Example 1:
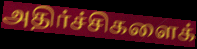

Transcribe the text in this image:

அதிர்ச்சிகளைக்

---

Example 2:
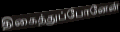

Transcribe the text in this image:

திகைத்துப்போனேன்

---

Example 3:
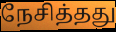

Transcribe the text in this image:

நேசித்தது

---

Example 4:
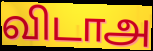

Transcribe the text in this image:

விடாஅ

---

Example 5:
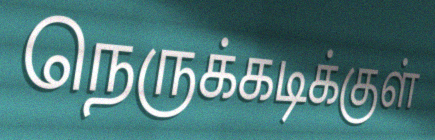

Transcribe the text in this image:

நெருக்கடிக்குள்